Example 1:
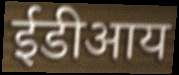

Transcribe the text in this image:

ईडीआय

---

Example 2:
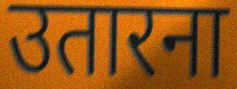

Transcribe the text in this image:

उतारना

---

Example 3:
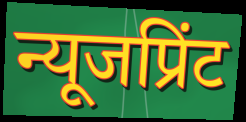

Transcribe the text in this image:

न्यूजप्रिंट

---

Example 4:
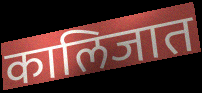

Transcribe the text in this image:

कालिजात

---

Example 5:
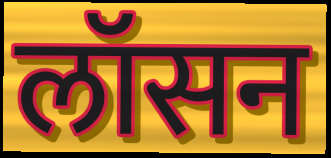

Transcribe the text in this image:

लॉसन